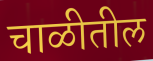
चाळीतील